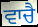
ਵਾਚੈ